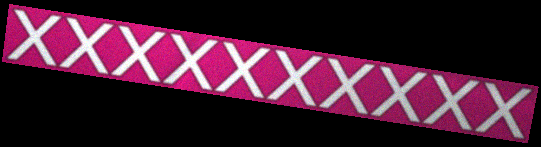
xxxxxxxxxx